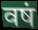
वषं